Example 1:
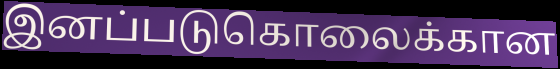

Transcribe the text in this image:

இனப்படுகொலைக்கான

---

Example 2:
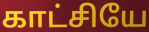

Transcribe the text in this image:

காட்சியே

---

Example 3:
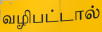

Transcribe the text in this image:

வழிபட்டால்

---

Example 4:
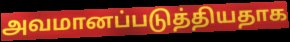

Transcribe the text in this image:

அவமானப்படுத்தியதாக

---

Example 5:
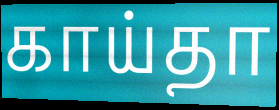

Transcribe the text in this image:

காய்தா